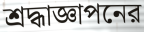
শ্রদ্ধাজ্ঞাপনের